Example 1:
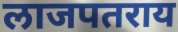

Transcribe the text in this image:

लाजपतराय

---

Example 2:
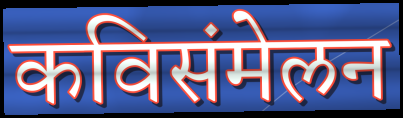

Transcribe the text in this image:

कविसंमेलन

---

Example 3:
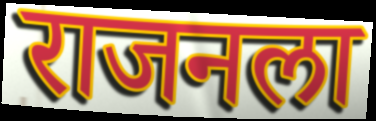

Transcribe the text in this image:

राजनला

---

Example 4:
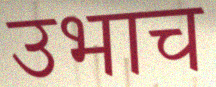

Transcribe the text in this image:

उभाच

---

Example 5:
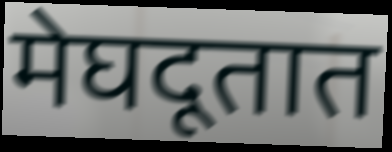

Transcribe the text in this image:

मेघदूतात